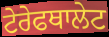
ਟੇਰੇਫਥਾਲੇਟ